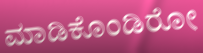
ಮಾಡಿಕೊಂಡಿರೋ